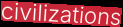
civilizations